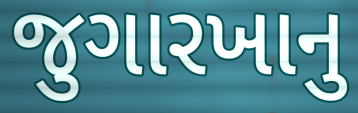
જુગારખાનુ